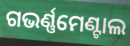
ଗଭର୍ଣ୍ଣମେଣ୍ଟାଲ